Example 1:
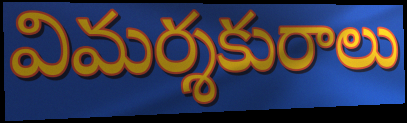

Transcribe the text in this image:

విమర్శకురాలు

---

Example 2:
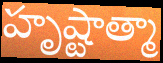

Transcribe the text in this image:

హృష్టాత్మా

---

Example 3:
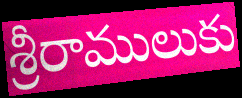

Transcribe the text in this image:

శ్రీరాములుకు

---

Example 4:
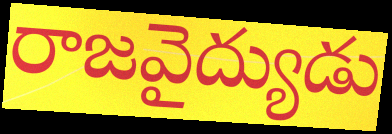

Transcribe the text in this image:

రాజవైద్యుడు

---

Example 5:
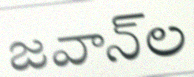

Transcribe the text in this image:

జవాన్‌ల